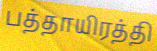
பத்தாயிரத்தி